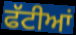
ਫੱਟੀਆਂ